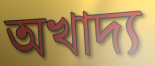
অখাদ্য